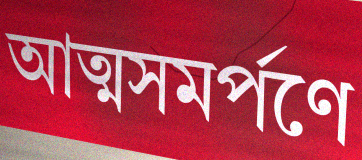
আত্মসমর্পণে